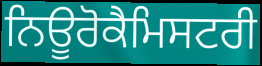
ਨਿਊਰੋਕੈਮਿਸਟਰੀ